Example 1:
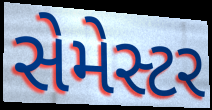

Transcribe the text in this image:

સેમેસ્ટર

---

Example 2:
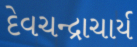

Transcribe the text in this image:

દેવચન્દ્રાચાર્ય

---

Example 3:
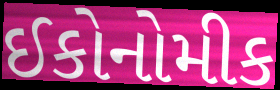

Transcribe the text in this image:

ઈકોનોમીક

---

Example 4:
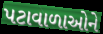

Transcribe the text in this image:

પટાવાળાઓને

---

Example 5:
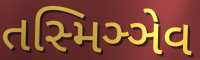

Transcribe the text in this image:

તસ્મિઞ્ઞેવ